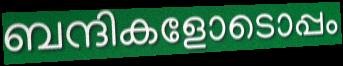
ബന്ദികളോടൊപ്പം